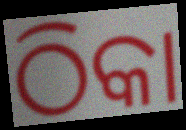
ଠିକା